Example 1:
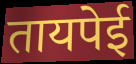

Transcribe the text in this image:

तायपेई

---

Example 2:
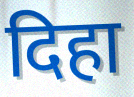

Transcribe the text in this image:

दिहा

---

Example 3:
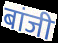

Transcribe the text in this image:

बांजी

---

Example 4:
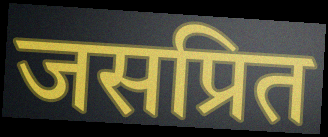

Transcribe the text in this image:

जसप्रित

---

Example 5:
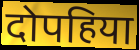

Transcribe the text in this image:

दोपहिया